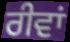
ਰੀਵਾਂ